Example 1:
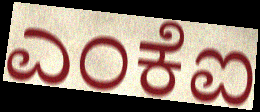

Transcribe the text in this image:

ಎಂಕೆಐ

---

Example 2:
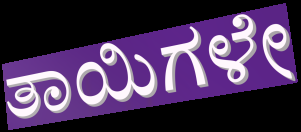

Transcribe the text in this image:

ತಾಯಿಗಳೇ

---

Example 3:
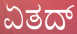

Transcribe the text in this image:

ಏತದ್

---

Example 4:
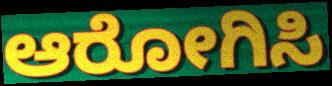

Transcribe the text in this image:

ಆರೋಗಿಸಿ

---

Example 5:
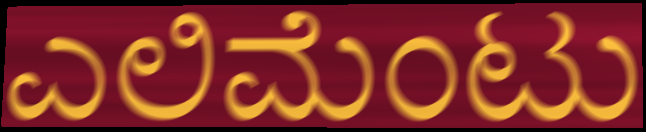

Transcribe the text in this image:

ಎಲಿಮೆಂಟು